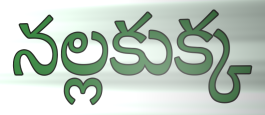
నల్లకుక్క